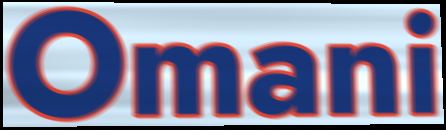
Omani